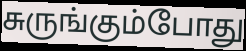
சுருங்கும்போது